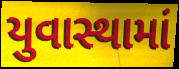
યુવાસ્થામાં